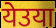
येउया